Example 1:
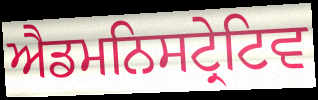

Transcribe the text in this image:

ਐਡਮਨਿਸਟ੍ਰੇਟਿਵ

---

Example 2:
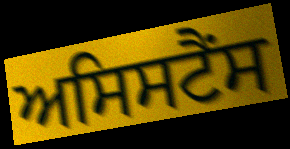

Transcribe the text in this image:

ਅਸਿਸਟੈਂਸ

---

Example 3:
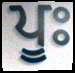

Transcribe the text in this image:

ਪੂਃ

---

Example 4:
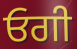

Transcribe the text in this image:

ਓਗੀ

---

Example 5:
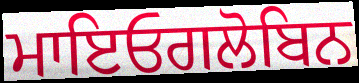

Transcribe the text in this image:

ਮਾਇਓਗਲੋਬਿਨ